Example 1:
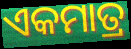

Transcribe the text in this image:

ଏକମାତ୍ର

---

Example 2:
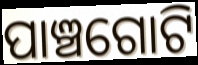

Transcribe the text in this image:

ପାଞ୍ଚଗୋଟି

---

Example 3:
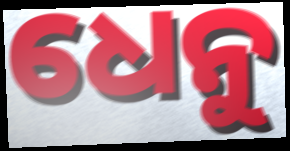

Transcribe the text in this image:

ଧେନୁ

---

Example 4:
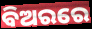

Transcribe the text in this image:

ବିଅରରେ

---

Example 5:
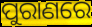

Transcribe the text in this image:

ପୁରାଣରେ